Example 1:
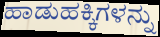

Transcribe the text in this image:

ಹಾಡುಹಕ್ಕಿಗಳನ್ನು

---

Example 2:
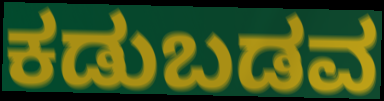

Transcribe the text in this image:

ಕಡುಬಡವ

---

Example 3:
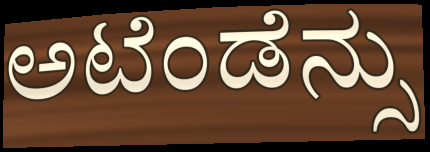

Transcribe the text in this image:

ಅಟೆಂಡೆನ್ಸು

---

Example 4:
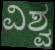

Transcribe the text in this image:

ವಿಶ್ವ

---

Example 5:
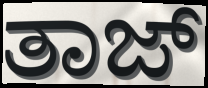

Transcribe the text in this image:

ತಾಜ್